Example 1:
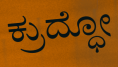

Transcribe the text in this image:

ಕ್ರುದ್ಧೋ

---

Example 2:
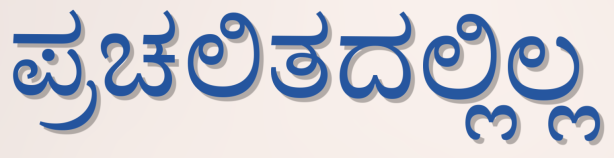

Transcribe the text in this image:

ಪ್ರಚಲಿತದಲ್ಲಿಲ್ಲ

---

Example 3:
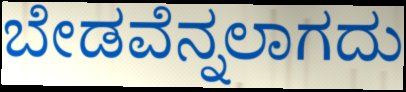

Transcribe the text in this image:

ಬೇಡವೆನ್ನಲಾಗದು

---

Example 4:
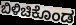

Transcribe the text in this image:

ಬಿಳಿಚಿಕೊಂಡ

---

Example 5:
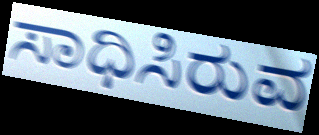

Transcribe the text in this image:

ಸಾಧಿಸಿರುವ